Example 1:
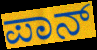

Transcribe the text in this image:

ಪಾನ್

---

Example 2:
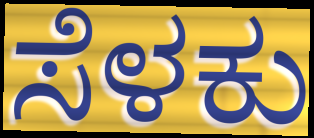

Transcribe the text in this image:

ಸೆಳಕು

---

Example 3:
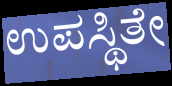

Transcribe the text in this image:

ಉಪಸ್ಥಿತೇ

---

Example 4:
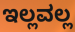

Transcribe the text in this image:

ಇಲ್ಲವಲ್ಲ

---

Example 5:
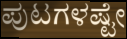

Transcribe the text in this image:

ಪುಟಗಳಷ್ಟೇ